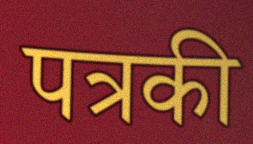
पत्रकी